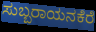
ಸುಬ್ಬರಾಯನಕೆರೆ